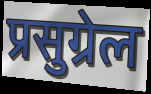
प्रसुग्रेल